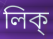
লিক্